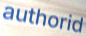
authorid